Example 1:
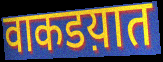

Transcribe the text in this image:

वाकडय़ात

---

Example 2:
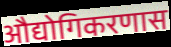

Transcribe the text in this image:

औद्योगिकरणास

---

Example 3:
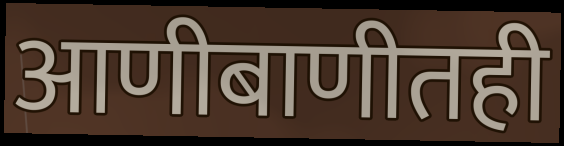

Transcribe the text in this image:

आणीबाणीतही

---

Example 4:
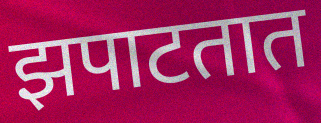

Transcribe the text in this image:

झपाटतात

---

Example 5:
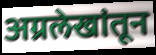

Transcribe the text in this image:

अग्रलेखांतून